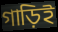
গাড়িই